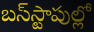
బస్‌స్టాపుల్లో